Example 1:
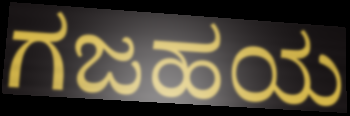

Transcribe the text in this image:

ಗಜಹಯ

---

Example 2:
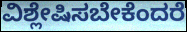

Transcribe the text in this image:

ವಿಶ್ಲೇಷಿಸಬೇಕೆಂದರೆ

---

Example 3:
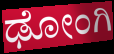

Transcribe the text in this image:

ಢೋಂಗಿ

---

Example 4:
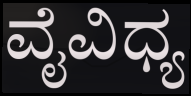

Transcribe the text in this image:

ವೈವಿಧ್ಯ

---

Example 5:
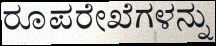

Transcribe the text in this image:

ರೂಪರೇಖೆಗಳನ್ನು